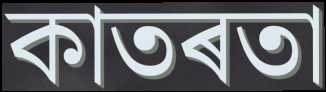
কাতৰতা